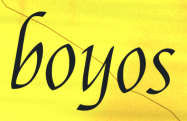
boyos